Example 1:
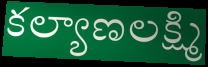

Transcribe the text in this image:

కల్యాణలక్ష్మి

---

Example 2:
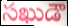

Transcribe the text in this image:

సఖుడౌ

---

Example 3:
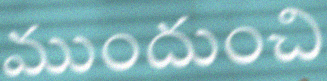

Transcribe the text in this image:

ముందుంచి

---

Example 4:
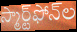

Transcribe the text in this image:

స్మార్ట్‌ఫోన్‌ల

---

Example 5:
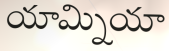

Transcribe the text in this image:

యామ్నియా